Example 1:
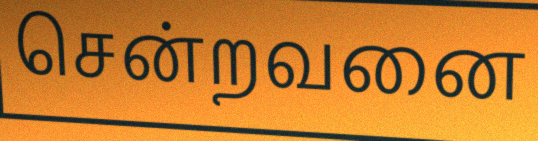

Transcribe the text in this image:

சென்றவனை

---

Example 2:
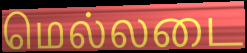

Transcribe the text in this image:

மெல்லடை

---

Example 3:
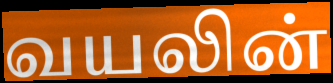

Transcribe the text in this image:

வயலின்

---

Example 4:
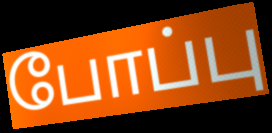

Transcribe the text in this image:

போப்பு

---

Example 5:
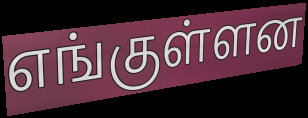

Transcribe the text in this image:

எங்குள்ளன